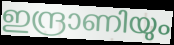
ഇന്ദ്രാണിയും